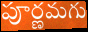
పూర్ణమగు